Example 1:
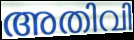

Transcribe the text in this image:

അതിവി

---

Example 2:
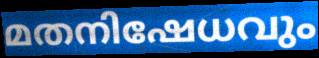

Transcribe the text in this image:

മതനിഷേധവും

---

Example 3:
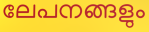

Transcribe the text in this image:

ലേപനങ്ങളും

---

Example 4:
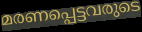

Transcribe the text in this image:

മരണപ്പെട്ടവരുടെ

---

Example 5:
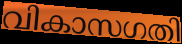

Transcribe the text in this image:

വികാസഗതി